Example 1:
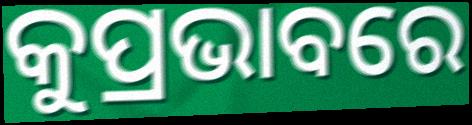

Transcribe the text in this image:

କୁପ୍ରଭାବରେ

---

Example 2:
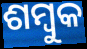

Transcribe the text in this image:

ଶମ୍ବୁକ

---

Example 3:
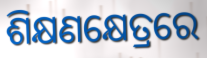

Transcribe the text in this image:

ଶିକ୍ଷଣକ୍ଷେତ୍ରରେ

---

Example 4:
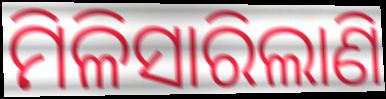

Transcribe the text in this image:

ମିଳିସାରିଲାଣି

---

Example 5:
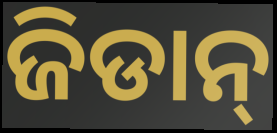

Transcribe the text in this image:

ଜିଡାନ୍